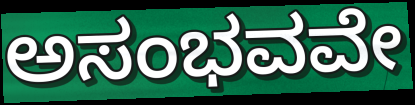
ಅಸಂಭವವೇ